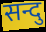
सन्दु